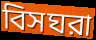
বিসঘরা